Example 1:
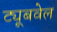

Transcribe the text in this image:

ट्यूबवेल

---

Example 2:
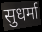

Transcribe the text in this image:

सुधर्मा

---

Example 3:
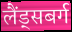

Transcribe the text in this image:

लैंड्सबर्ग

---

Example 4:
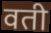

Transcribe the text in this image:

वती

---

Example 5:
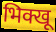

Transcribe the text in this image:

भिक्खू